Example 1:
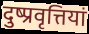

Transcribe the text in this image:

दुष्प्रवृत्तियां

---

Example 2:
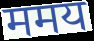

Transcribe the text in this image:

ममय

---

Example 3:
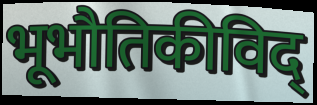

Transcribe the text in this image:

भूभौतिकीविद्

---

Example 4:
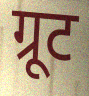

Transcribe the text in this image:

ग्रूट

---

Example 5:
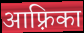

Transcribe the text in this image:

आफ़्रिका